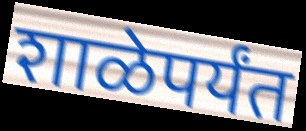
शाळेपर्यंत